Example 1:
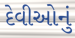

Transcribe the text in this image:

દેવીઓનું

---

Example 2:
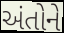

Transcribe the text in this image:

અંતોને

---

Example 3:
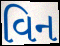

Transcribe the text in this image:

વિન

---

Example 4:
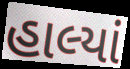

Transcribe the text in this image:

હાલ્યાં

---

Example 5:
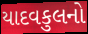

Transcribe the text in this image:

યાદવકુલનો